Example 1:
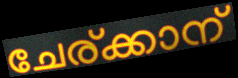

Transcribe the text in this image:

ചേര്ക്കാന്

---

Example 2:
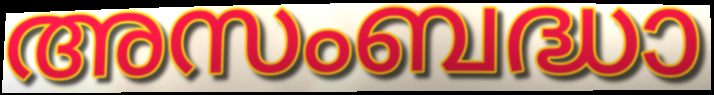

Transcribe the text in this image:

അസംബദ്ധാ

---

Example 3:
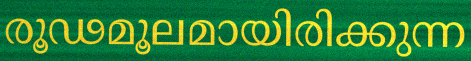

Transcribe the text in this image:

രൂഢമൂലമായിരിക്കുന്ന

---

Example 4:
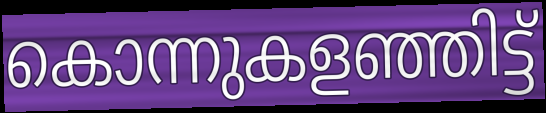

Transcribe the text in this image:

കൊന്നുകളഞ്ഞിട്ട്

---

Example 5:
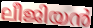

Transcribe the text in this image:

ലീജിയൻ